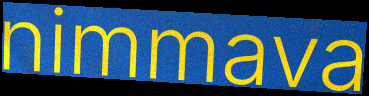
nimmava